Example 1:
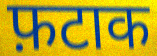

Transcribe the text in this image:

फ़टाक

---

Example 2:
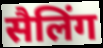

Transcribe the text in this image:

सैलिंग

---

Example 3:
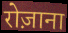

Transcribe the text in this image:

रोज़ाना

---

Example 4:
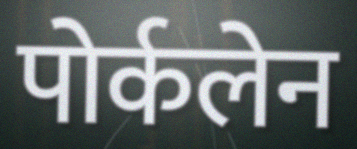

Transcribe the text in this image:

पोर्कलेन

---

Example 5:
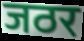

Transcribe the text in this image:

जठर